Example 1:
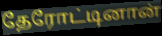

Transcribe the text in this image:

தேரோட்டினான்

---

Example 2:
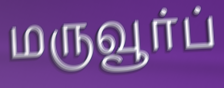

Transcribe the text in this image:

மருவூர்ப்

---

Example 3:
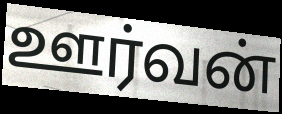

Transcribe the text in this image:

ஊர்வன்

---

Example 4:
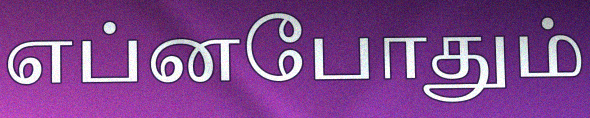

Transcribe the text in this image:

எப்னபோதும்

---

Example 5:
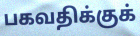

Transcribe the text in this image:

பகவதிக்குக்